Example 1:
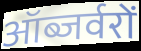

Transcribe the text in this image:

ऑब्जर्वरों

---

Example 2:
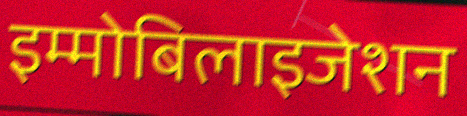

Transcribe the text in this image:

इम्मोबिलाइजेशन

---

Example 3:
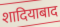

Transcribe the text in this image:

शादियाबाद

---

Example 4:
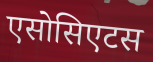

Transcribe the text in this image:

एसोसिएटस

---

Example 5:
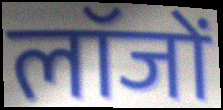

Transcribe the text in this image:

लॉजों